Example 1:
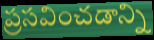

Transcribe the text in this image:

ప్రసవించడాన్ని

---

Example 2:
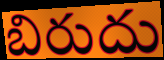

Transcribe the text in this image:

బిరుదు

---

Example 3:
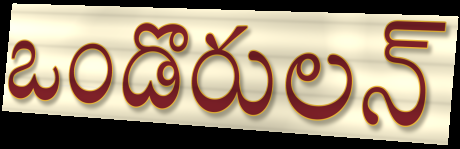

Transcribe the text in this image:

ఒండొరులన్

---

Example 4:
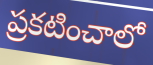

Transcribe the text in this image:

ప్రకటించాలో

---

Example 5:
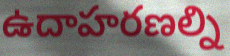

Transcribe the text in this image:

ఉదాహరణల్ని